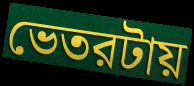
ভেতরটায়